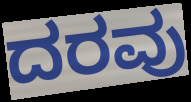
ದರವು